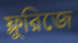
ফ্লুরিজে